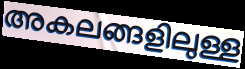
അകലങ്ങളിലുള്ള